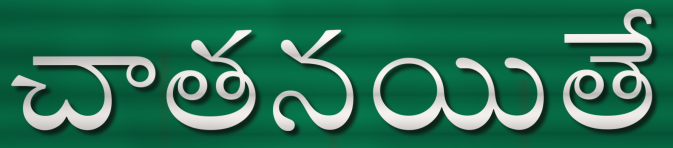
చాతనయితే